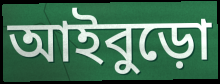
আইবুড়ো